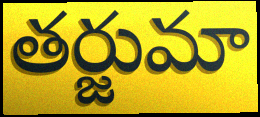
తర్జుమా